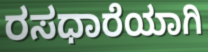
ರಸಧಾರೆಯಾಗಿ